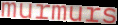
murmurs